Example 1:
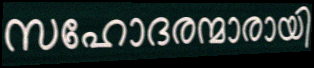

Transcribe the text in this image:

സഹോദരന്മാരായി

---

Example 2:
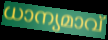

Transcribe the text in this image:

ധാന്യമാവ്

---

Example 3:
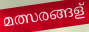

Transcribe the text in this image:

മത്സരങ്ങള്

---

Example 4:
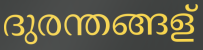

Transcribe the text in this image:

ദുരന്തങ്ങള്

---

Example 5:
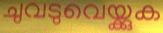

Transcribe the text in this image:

ചുവടുവെയ്ക്കുക